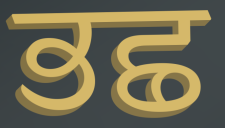
ਭਛ